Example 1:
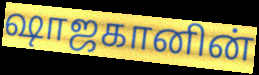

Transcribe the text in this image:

ஷாஜகானின்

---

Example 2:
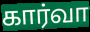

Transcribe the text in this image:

கார்வா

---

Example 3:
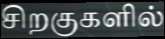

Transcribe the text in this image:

சிறகுகளில்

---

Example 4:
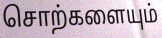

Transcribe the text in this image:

சொற்களையும்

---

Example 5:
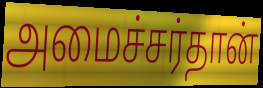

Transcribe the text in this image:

அமைச்சர்தான்